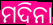
ମଦିନା